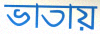
ভাতায়